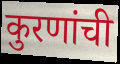
कुरणांची